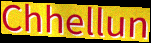
Chhellun